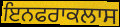
ਇਨਫਰਾਕਲਾਸ